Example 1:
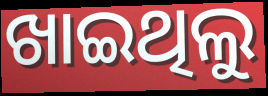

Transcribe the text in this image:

ଖାଇଥିଲୁ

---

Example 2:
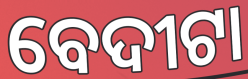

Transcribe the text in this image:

ବେଦୀଟା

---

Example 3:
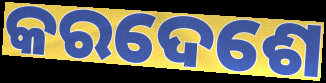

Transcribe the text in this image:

କରଦେଶେ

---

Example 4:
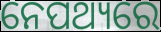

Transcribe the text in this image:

ନେପଥ୍ୟରେ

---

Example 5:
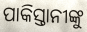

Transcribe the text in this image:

ପାକିସ୍ତାନୀଙ୍କୁ